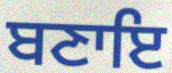
ਬਣਾਇ